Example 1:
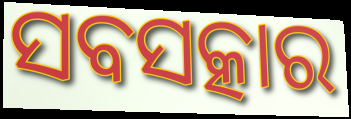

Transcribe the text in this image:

ସବସତ୍କାର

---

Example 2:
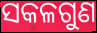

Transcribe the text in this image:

ସକଳଗୁଣ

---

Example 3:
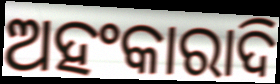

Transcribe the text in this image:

ଅହଂକାରାଦି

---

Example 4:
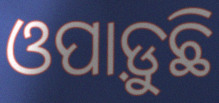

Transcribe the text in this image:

ଓପାଡ଼ୁଛି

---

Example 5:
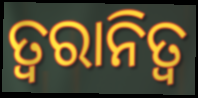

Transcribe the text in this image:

ତ୍ୱରାନିତ୍ଵ